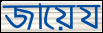
জায়েয